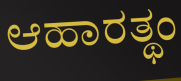
ಆಹಾರತ್ಥಂ